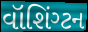
વૉશિંગ્ટન